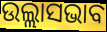
ଉଲ୍ଲାସଭାବ